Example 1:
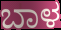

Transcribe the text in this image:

ಬಾಳ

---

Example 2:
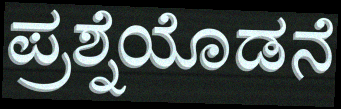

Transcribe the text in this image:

ಪ್ರಶ್ನೆಯೊಡನೆ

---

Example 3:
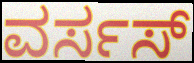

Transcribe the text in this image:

ವರ್ಸಸ್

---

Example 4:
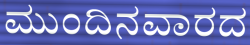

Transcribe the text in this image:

ಮುಂದಿನವಾರದ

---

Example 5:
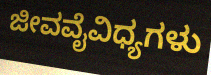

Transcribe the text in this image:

ಜೀವವೈವಿಧ್ಯಗಳು